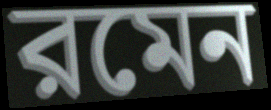
রমেন